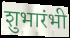
शुभारंभी